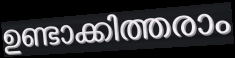
ഉണ്ടാക്കിത്തരാം